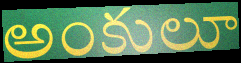
అంకులూ